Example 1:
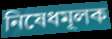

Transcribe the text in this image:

নিষেধমূলক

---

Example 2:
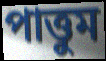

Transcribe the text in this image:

পাত্তুম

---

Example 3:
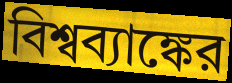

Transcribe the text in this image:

বিশ্বব্যাঙ্কের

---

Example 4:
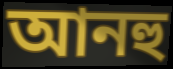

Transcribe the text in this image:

আনহু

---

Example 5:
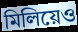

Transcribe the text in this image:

মিলিয়েও